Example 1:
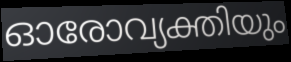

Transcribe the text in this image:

ഓരോവ്യക്തിയും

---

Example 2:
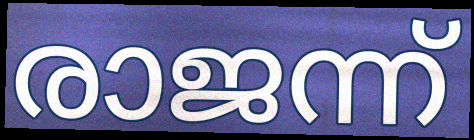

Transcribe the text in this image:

രാജന്ന്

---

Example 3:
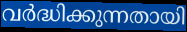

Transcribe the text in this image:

വർദ്ധിക്കുന്നതായി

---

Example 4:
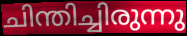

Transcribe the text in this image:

ചിന്തിച്ചിരുന്നു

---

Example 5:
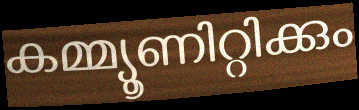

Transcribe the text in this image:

കമ്മ്യൂണിറ്റിക്കും